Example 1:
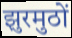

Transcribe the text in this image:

झुरमुठों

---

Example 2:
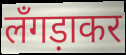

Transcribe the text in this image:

लँगड़ाकर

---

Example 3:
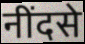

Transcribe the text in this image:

नींदसे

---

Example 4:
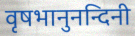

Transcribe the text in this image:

वृषभानुनन्दिनी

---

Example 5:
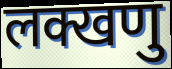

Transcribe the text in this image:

लक्खणु